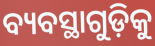
ବ୍ୟବସ୍ଥାଗୁଡ଼ିକୁ